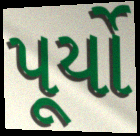
પૂર્યો